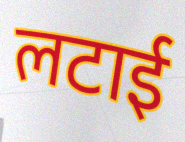
लटाई